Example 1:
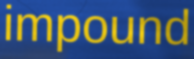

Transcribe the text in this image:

impound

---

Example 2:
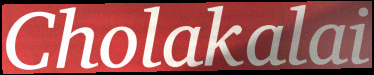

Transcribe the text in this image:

Cholakalai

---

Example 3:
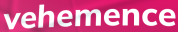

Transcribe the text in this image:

vehemence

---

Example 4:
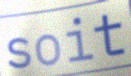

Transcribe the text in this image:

soit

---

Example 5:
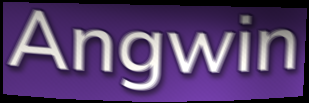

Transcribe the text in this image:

Angwin